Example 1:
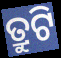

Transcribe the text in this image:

ତ୍ରୁଟି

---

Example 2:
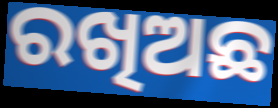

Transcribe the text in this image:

ରଖିଅଛ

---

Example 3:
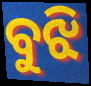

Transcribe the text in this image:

ବୁଝି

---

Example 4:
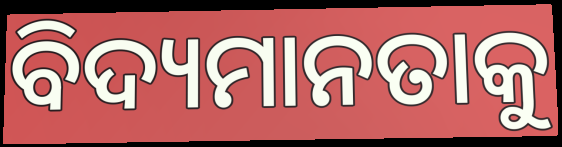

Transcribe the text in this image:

ବିଦ୍ୟମାନତାକୁ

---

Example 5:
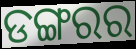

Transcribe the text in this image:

ଡଙ୍ଗରର